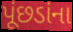
પૂંછડાંના